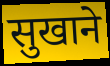
सुखाने